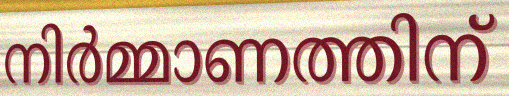
നിർമ്മാണത്തിന്